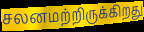
சலனமற்றிருக்கிறது